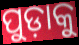
ପୁଡ଼ାକୁ